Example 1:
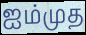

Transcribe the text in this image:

ஐம்முத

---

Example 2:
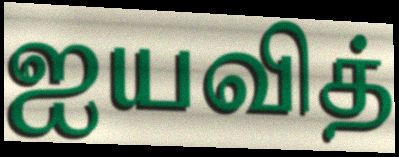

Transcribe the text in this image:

ஐயவித்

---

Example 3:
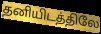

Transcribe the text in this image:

தனியிடத்திலே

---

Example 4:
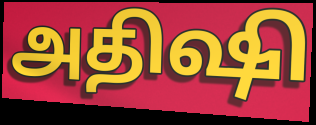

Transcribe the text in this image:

அதிஷி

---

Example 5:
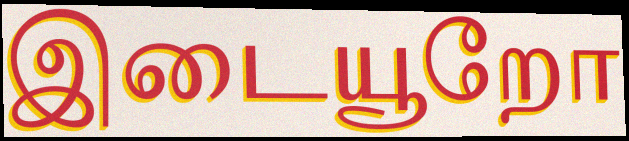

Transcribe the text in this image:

இடையூறோ